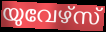
യുവേഴ്സ്